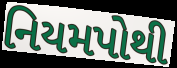
નિયમપોથી